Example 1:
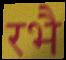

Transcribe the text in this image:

रभै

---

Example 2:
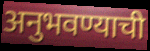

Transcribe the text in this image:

अनुभवण्याची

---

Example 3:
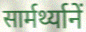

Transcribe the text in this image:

सार्मर्थ्यानें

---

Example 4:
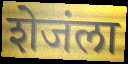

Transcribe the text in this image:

शेजंला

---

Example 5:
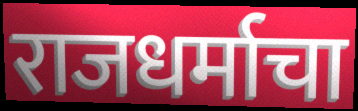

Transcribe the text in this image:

राजधर्माचा